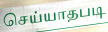
செய்யாதபடி